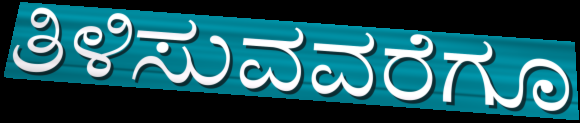
ತಿಳಿಸುವವರೆಗೂ